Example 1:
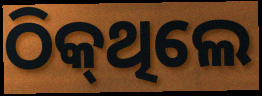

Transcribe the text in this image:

ଠିକ୍‌ଥିଲେ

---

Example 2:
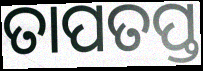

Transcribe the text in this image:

ତାପତପ୍ତ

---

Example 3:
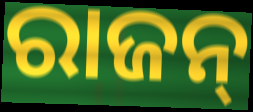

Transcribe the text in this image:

ରାଜନ୍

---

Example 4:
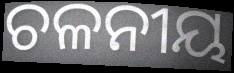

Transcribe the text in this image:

ଚଳନୀୟ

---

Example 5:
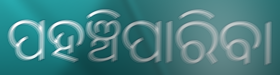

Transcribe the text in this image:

ପହଞ୍ଚିପାରିବା